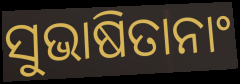
ସୁଭାଷିତାନାଂ